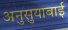
अनुसुयाबाई